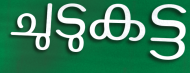
ചുടുകട്ട